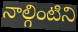
నాల్గింటిని